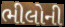
ભીલોની